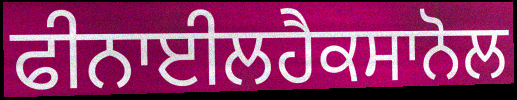
ਫੀਨਾਈਲਹੈਕਸਾਨੋਲ